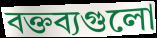
বক্তব্যগুলো